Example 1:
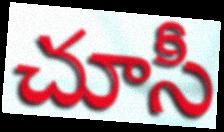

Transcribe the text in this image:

చూసీ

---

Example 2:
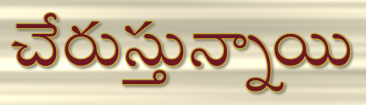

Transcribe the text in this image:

చేరుస్తున్నాయి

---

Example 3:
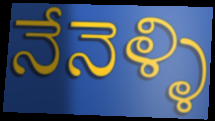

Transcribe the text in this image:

నేనెళ్ళి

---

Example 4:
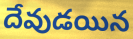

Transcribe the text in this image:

దేవుడయిన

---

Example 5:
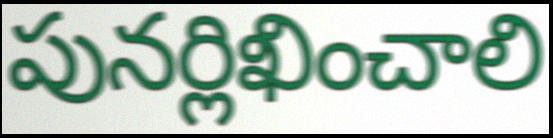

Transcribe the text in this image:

పునర్లిఖించాలి